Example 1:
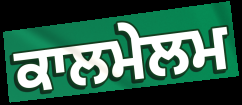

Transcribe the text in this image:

ਕਾਲਮੇਲਮ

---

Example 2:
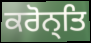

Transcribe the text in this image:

ਕਰੋਨ੍ਤਿ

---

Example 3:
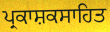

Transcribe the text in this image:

ਪ੍ਰਕਾਸ਼ਕਸਾਹਿਤ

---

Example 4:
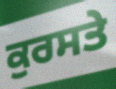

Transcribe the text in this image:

ਕੁਰਸਤੇ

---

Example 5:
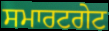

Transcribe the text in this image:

ਸਮਾਰਟਗੇਟ